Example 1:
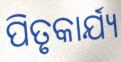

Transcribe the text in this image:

ପିତୃକାର୍ଯ୍ୟ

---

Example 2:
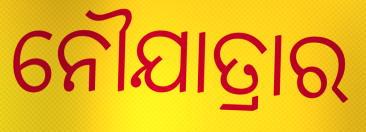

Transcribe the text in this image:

ନୌଯାତ୍ରାର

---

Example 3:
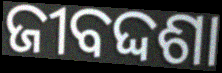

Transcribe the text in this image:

ଜୀବଦ୍ଦଶା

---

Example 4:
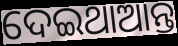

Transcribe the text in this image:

ଦେଇଥାଆନ୍ତ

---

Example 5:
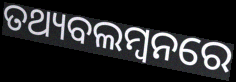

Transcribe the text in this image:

ତଥ୍ୟବଲମ୍ବନରେ